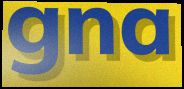
gna